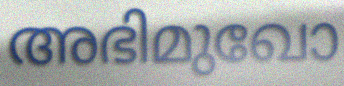
അഭിമുഖോ